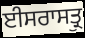
ਈਸਰਾਸਤ੍ਰੁ